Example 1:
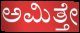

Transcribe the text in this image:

ಅಮಿತ್ತೇ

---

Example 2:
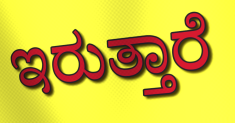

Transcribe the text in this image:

ಇರುತ್ತಾರೆ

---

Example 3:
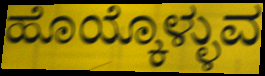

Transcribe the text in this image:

ಹೊಯ್ಕೊಳ್ಳುವ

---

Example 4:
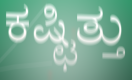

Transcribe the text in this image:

ಕಷ್ಟಿತ್ತು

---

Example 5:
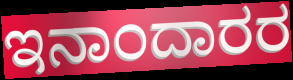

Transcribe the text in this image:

ಇನಾಂದಾರರ